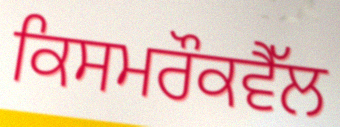
ਕਿਸਮਰੌਕਵੈੱਲ